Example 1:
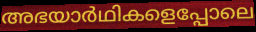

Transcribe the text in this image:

അഭയാർഥികളെപ്പോലെ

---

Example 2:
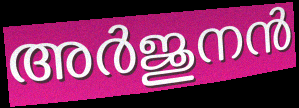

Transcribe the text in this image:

അർജുനൻ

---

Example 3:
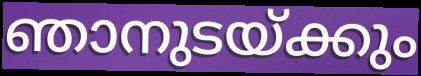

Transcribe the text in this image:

ഞാനുടയ്ക്കും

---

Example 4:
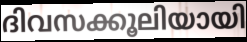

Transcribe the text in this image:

ദിവസക്കൂലിയായി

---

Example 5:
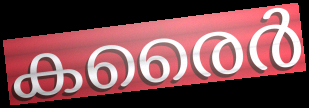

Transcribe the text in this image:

കരൈർ